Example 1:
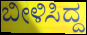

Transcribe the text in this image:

ಬೀಳಿಸಿದ್ದ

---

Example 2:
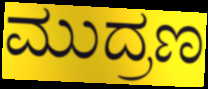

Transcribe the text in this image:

ಮುದ್ರಣ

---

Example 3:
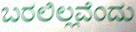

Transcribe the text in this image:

ಬರಲಿಲ್ಲವೆಂದು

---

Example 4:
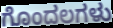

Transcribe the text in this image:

ಗೊಂದಲಗಳು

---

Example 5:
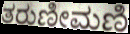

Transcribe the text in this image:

ತರುಣೀಮಣಿ